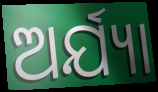
ଅର୍ଯ୍ୟା